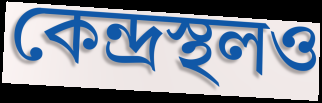
কেন্দ্রস্থলও